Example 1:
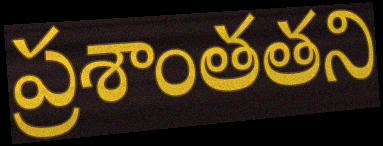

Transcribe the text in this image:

ప్రశాంతతని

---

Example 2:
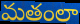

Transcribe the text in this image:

మతంలా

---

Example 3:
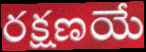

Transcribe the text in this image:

రక్షణయే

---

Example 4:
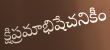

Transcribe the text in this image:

క్షిప్రమాభిషేచనికీం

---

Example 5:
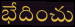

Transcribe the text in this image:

భేదించు